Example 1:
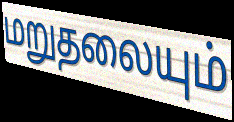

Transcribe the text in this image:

மறுதலையும்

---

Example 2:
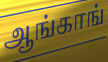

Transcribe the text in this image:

ஆங்காங்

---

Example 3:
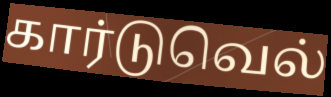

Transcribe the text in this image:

கார்டுவெல்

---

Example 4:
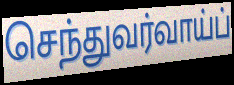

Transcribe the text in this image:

செந்துவர்வாய்ப்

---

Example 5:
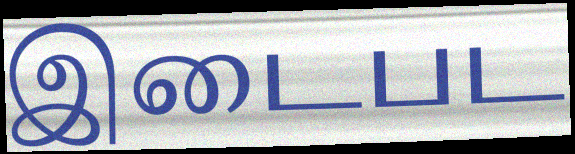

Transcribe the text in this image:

இடைபட